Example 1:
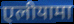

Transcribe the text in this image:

एलीयामा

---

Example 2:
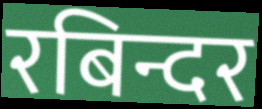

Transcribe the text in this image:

रबिन्दर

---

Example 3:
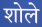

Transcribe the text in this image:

शोले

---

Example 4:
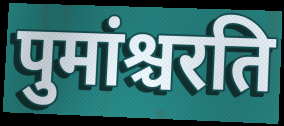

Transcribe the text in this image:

पुमांश्चरति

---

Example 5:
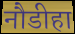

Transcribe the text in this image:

नौडीहा